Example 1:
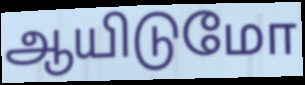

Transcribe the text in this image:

ஆயிடுமோ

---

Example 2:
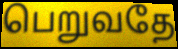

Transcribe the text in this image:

பெறுவதே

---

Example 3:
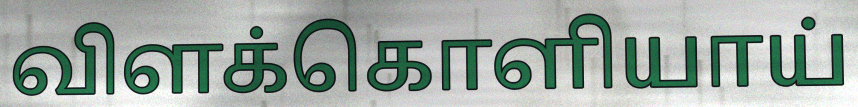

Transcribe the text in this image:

விளக்கொளியாய்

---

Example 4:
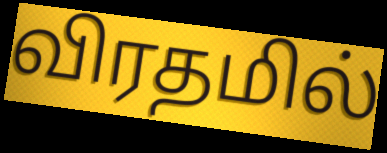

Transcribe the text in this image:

விரதமில்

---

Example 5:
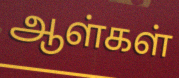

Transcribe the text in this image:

ஆள்கள்